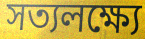
সত্যলক্ষ্যে